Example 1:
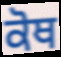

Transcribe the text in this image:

ਕੋਥ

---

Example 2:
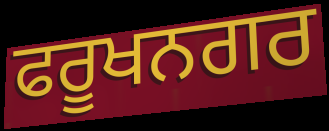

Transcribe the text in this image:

ਫਰੂਖਨਗਰ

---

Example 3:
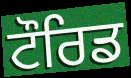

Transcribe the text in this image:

ਟੌਰਿਡ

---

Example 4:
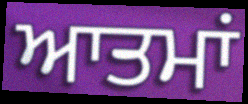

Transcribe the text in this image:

ਆਤਮਾਂ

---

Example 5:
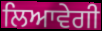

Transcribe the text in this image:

ਲਿਆਵੇਗੀ